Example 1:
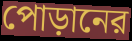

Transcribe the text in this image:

পোড়ানের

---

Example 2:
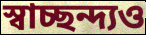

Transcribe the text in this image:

স্বাচ্ছন্দ্যও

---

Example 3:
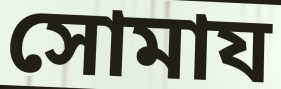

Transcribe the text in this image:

সোমায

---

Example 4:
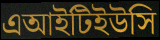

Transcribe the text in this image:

এআইটিইউসি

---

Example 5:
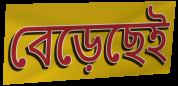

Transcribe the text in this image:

বেড়েছেই